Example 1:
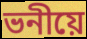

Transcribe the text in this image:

ভনীয়ে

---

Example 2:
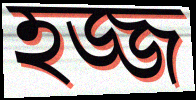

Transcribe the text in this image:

হজ্জ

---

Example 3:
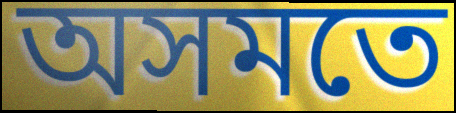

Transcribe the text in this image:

অসমতে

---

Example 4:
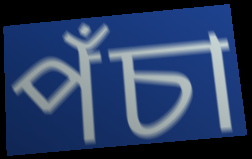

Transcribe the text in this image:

পঁচা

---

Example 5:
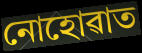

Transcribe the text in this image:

নোহোৱাত